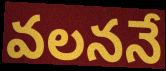
వలననే